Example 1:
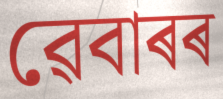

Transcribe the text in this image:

ৱেবাৰৰ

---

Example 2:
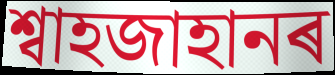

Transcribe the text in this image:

শ্বাহজাহানৰ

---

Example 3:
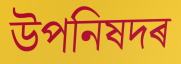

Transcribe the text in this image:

উপনিষদৰ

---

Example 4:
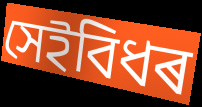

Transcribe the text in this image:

সেইবিধৰ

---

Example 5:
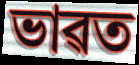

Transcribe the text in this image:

ভাৱত